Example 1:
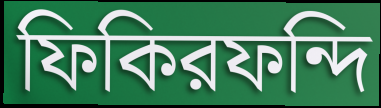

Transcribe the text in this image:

ফিকিরফন্দি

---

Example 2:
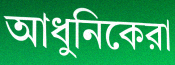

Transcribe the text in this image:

আধুনিকেরা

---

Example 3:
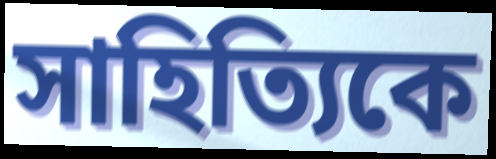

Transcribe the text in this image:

সাহিত্যিকে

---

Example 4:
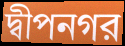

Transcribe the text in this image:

দ্বীপনগর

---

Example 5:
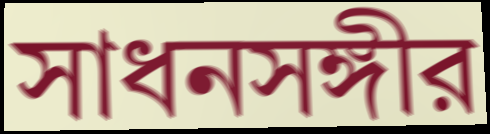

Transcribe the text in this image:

সাধনসঙ্গীর